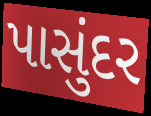
પાસુંદર